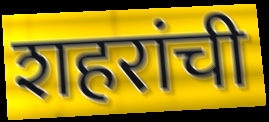
शहरांची